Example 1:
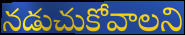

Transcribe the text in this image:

నడుచుకోవాలని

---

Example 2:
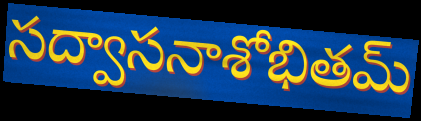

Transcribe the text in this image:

సద్వాసనాశోభితమ్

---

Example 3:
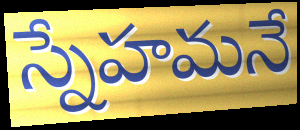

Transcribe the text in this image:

స్నేహమనే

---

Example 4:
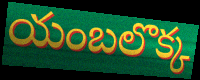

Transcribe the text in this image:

యంబలొక్క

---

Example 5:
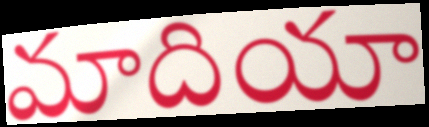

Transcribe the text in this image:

మాదియా